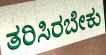
ತರಿಸಿರಬೇಕು